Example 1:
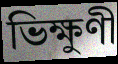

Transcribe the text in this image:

ভিক্ষুণী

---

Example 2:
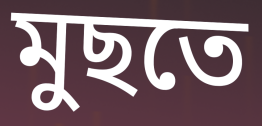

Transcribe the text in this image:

মুছতে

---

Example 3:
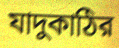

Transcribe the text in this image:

যাদুকাঠির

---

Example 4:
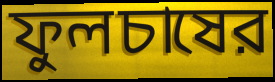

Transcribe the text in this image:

ফুলচাষের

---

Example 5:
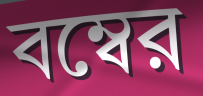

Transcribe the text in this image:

বম্বের